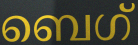
ബെഗ്